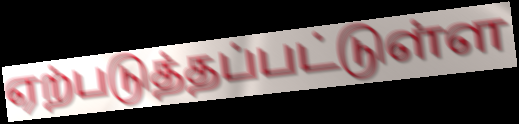
ஏற்படுத்தப்பட்டுள்ள